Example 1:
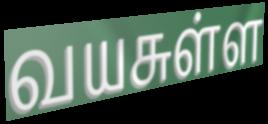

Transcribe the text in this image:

வயசுள்ள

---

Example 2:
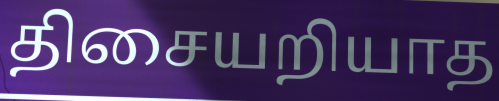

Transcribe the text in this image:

திசையறியாத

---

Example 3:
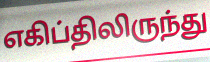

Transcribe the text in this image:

எகிப்திலிருந்து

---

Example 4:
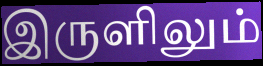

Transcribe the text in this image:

இருளிலும்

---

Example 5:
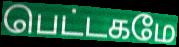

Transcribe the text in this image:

பெட்டகமே